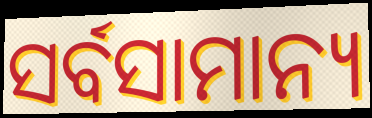
ସର୍ବସାମାନ୍ୟ